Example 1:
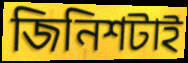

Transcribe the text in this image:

জিনিশটাই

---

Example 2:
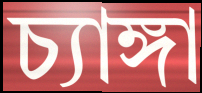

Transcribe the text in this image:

চ্যাঙ্গা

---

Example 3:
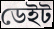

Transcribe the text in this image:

ডেইট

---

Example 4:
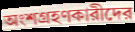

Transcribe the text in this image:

অংশগ্রহণকারীদের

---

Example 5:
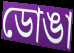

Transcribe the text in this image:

ডোঙা